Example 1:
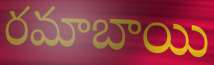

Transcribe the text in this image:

రమాబాయి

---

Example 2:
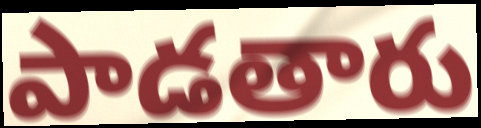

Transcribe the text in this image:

పాడతారు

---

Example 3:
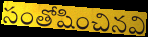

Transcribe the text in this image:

సంతోషించినవి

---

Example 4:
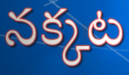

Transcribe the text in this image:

నక్కట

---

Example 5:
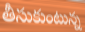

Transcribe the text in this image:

తీసుకుంటున్న